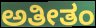
ಅತೀತಂ